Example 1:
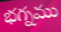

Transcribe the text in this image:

భగ్నము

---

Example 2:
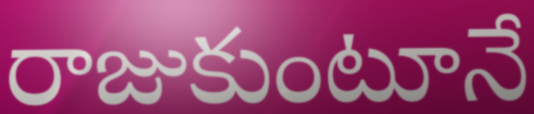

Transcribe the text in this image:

రాజుకుంటూనే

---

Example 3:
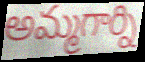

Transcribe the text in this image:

అమ్మగార్ని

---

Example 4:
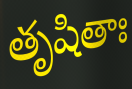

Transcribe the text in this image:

తృషితాః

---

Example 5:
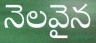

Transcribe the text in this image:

నెలవైన